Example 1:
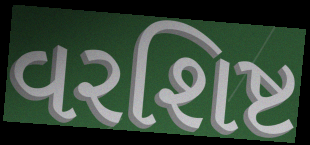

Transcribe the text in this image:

વરશિષ્ટ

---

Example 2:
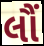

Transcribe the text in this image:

લૌં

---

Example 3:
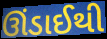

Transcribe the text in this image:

ઊંડાઈથી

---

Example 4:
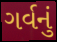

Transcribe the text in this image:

ગર્વનું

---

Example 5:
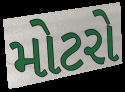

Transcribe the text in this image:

મોટરો